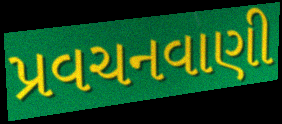
પ્રવચનવાણી